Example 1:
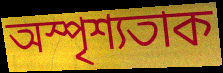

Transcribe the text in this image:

অস্পৃশ্যতাক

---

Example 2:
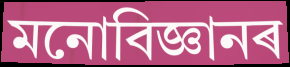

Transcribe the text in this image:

মনোবিজ্ঞানৰ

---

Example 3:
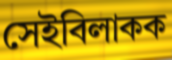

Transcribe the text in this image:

সেইবিলাকক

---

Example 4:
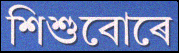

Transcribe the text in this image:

শিশুবোৰে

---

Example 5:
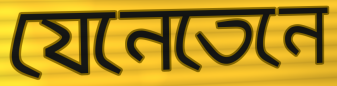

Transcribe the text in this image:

যেনেতেনে